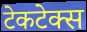
टेकटेक्स